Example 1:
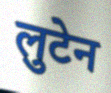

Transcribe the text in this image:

लुटेन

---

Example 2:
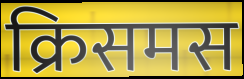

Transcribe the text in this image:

क्रिसमस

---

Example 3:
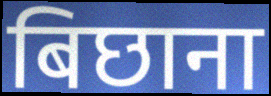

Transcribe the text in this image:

बिछाना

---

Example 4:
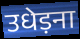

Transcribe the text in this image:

उधेड़ना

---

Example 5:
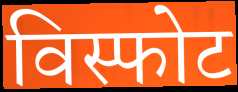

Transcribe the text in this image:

विस्फोट